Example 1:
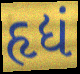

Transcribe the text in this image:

હૃદ્યં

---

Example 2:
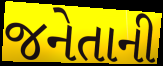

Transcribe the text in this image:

જનેતાની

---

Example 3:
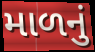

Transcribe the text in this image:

માળનું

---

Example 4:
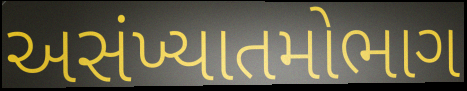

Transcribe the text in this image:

અસંખ્યાતમોભાગ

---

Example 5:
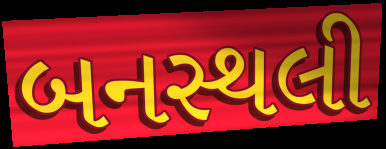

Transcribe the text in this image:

બનસ્થલી